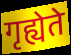
गृह्येते